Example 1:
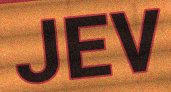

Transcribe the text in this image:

JEV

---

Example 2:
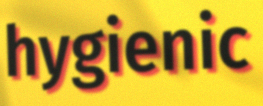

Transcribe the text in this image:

hygienic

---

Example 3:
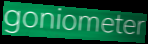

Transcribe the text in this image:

goniometer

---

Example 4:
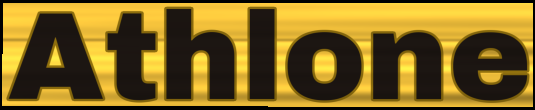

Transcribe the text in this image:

Athlone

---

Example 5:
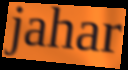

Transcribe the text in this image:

jahar